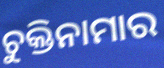
ଚୁକ୍ତିନାମାର